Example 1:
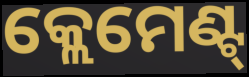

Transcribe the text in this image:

କ୍ଲେମେଣ୍ଟ୍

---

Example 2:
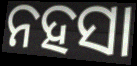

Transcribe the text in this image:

ନହସା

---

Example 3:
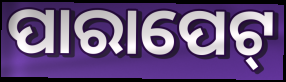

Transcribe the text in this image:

ପାରାପେଟ୍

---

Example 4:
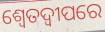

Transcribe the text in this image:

ଶ୍ୱେତଦ୍ୱୀପରେ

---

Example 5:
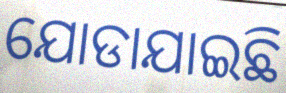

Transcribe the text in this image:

ଯୋଡାଯାଇଛି